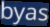
byas